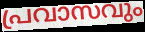
പ്രവാസവും